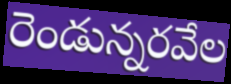
రెండున్నరవేల